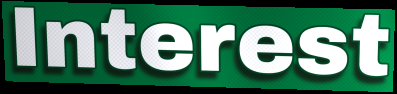
Interest